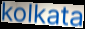
kolkata